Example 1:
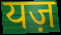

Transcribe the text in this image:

यज़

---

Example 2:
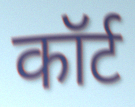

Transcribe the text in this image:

कॉर्ट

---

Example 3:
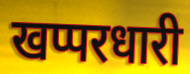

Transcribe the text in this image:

खप्परधारी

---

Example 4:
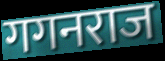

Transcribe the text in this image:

गगनराज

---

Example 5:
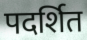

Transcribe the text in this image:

पदर्शित